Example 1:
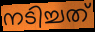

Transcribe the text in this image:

നടിച്ചത്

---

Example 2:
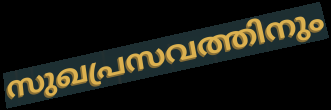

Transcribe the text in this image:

സുഖപ്രസവത്തിനും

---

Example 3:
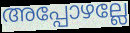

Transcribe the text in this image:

അപ്പോഴല്ലേ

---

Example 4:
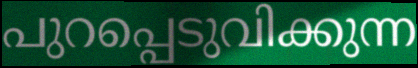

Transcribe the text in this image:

പുറപ്പെടുവിക്കുന്ന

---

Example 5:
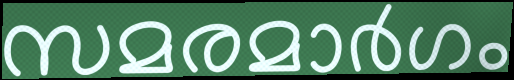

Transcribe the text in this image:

സമരമാർഗം